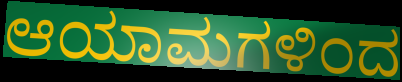
ಆಯಾಮಗಳಿಂದ